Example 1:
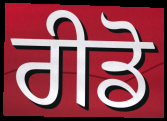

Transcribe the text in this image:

ਰੀਡੋ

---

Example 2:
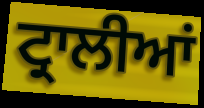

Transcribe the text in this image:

ਟ੍ਰਾਲੀਆਂ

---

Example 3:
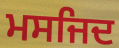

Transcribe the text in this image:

ਮਸਜਿਦ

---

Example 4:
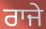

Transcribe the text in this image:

ਰਾਜੇ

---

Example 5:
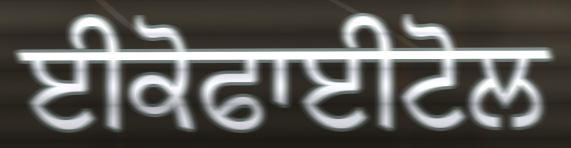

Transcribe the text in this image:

ਈਕੋਫਾਈਟੋਲ